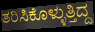
ತರಿಸಿಕೊಳ್ಳುತ್ತಿದ್ದ